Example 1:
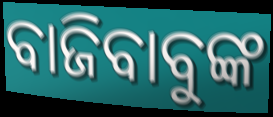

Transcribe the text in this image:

ବାଜିବାବୁଙ୍କ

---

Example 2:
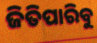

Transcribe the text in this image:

ଜିତିପାରିବୁ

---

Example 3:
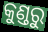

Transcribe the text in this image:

କୁଣ୍ଡରୁ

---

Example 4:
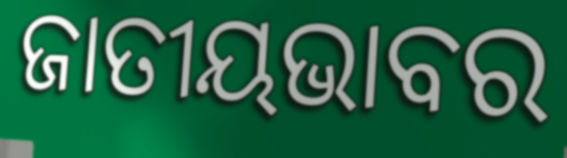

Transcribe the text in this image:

ଜାତୀୟଭାବର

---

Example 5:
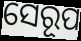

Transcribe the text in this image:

ସେରୂପ